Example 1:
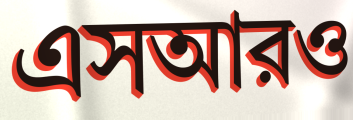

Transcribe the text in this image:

এসআরও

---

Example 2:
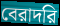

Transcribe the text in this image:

বেরাদরি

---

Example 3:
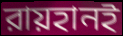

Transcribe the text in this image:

রায়হানই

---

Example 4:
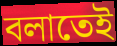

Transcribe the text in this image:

বলাতেই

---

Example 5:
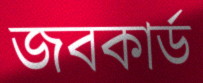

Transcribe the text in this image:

জবকার্ড